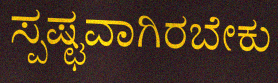
ಸ್ಪಷ್ಟವಾಗಿರಬೇಕು